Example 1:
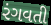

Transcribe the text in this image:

રંગવતી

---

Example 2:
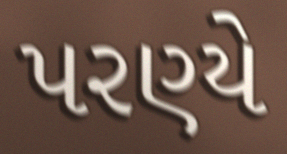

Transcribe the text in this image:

પરણ્યે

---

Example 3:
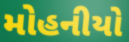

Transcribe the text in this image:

મોહનીયો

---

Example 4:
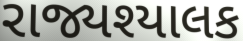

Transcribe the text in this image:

રાજ્યશ્યાલક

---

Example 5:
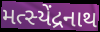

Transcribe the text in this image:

મત્સ્યેંદ્રનાથ